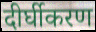
दीर्घीकरण